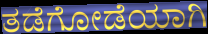
ತಡೆಗೋಡೆಯಾಗಿ